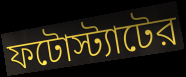
ফটোস্ট্যাটের